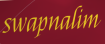
swapnalim